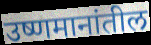
उष्णमानांतील